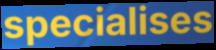
specialises